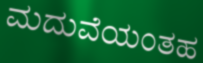
ಮದುವೆಯಂತಹ